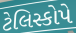
ટેલિસ્કોપે